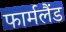
फार्मलैंड